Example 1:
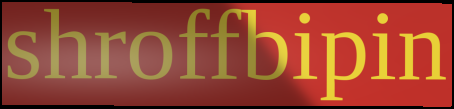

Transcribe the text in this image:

shroffbipin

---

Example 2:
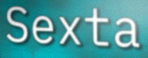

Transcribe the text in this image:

Sexta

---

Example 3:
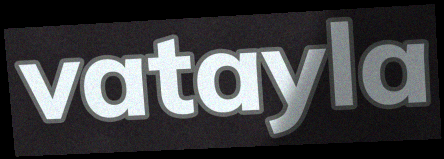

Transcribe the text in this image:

vatayla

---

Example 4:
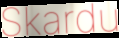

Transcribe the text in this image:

Skardu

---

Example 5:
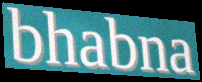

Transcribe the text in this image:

bhabna